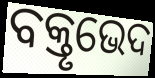
ବକ୍ତୃଭେଦ